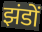
झंडों